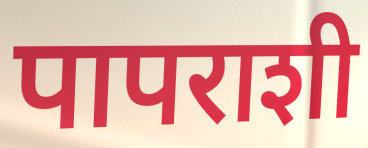
पापराशी